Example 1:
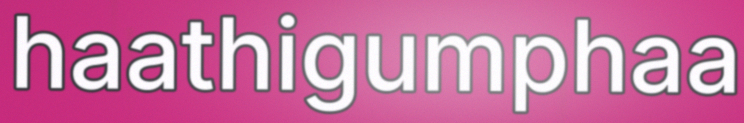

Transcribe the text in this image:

haathigumphaa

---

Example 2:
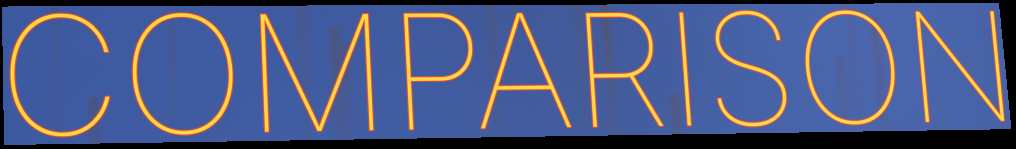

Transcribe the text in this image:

COMPARISON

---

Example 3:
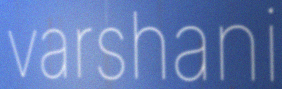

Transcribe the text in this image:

varshani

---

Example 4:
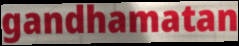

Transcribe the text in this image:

gandhamatan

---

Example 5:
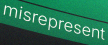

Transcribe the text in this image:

misrepresent